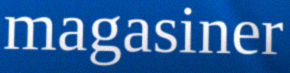
magasiner